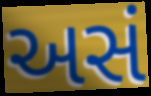
અસં